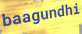
baagundhi